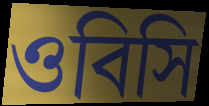
ওবিসি